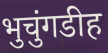
भुचुंगडीह